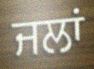
ਜਲਾਂ